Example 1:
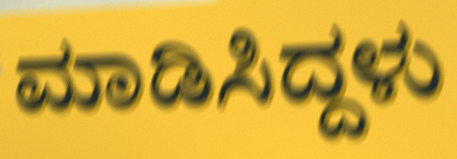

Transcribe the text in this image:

ಮಾಡಿಸಿದ್ದಳು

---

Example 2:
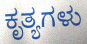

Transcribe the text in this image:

ಕೃತ್ಯಗಳು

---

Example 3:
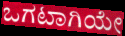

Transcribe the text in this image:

ಒಗಟಾಗಿಯೇ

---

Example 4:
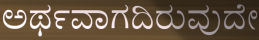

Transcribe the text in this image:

ಅರ್ಥವಾಗದಿರುವುದೇ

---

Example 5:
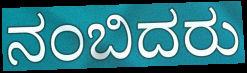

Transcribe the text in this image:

ನಂಬಿದರು